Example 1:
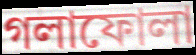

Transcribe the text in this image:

গলাফোলা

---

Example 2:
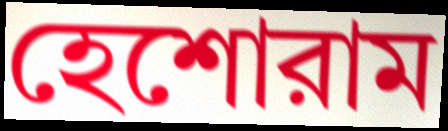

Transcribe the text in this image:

হেশোরাম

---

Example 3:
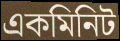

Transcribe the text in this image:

একমিনিট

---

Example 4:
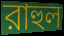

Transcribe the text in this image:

রাহুল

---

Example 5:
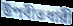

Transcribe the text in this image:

উপবীতধারী